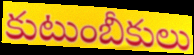
కుటుంబీకులు